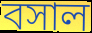
বসাল